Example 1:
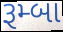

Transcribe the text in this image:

રૂમ્બા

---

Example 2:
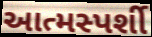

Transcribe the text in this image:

આત્મસ્પર્શી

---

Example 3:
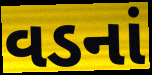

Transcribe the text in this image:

વડનાં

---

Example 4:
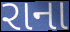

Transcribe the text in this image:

રાના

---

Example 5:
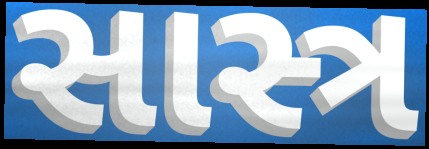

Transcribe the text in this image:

સાસ્ત્ર